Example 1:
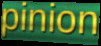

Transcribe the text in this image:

pinion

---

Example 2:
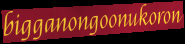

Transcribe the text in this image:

bigganongoonukoron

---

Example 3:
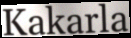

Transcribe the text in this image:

Kakarla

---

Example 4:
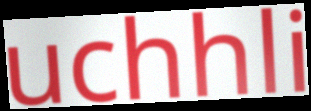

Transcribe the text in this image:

uchhli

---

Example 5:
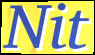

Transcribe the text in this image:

Nit